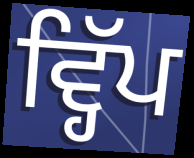
ਵ੍ਹਿੱਪ